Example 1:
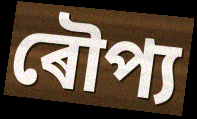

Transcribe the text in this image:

ৰৌপ্য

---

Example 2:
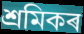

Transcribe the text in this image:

শ্ৰমিকৰ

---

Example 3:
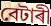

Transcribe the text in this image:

বেটাৰী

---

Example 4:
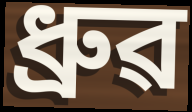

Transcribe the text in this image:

ধ্ৰুৱ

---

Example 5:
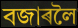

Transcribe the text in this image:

বজাৰলৈ